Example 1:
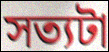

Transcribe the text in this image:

সত্যটা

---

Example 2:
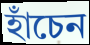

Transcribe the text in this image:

হাঁচেন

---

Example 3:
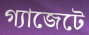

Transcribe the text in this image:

গ্যাজেটে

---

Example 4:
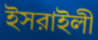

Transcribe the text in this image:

ইসরাইলী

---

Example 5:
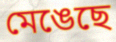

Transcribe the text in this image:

মেঙেছে